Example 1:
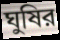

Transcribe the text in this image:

ঘুষির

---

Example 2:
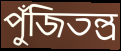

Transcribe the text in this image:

পুঁজিতন্ত্র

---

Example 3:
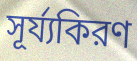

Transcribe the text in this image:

সূর্য্যকিরণ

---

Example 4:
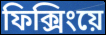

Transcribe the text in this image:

ফিক্সিংয়ে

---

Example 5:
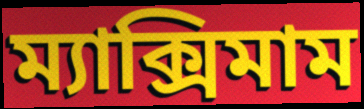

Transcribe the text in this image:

ম্যাক্সিমাম